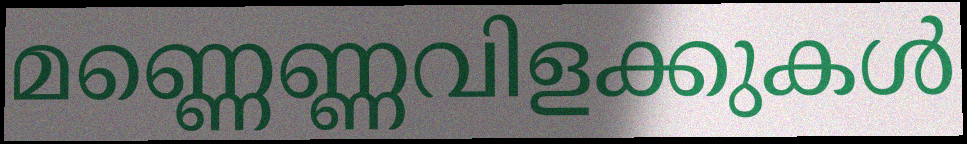
മണ്ണെണ്ണവിളക്കുകൾ